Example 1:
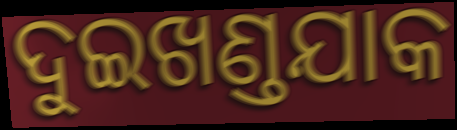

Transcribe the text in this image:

ଦୁଇଖଣ୍ଡଯାକ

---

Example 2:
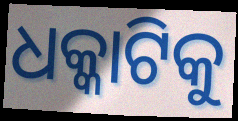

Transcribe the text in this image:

ଧକ୍କାଟିକୁ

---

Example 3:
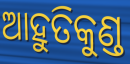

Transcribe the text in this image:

ଆହୁତିକୁଣ୍ଡ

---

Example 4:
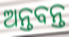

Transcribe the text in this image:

ଅନ୍ତବନ୍ତ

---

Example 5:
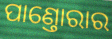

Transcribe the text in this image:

ପାଣ୍ତୋରାର